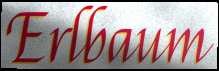
Erlbaum